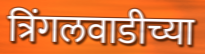
त्रिंगलवाडीच्या